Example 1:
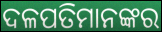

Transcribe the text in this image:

ଦଳପତିମାନଙ୍କର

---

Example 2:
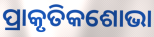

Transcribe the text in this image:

ପ୍ରାକୃତିକଶୋଭା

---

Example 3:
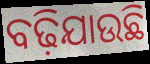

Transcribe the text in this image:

ବଢ଼ିଯାଉଛି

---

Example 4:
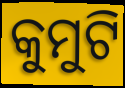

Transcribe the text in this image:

କୁମୁଟି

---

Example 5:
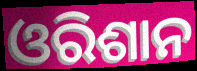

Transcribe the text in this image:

ଓରିଶାନ